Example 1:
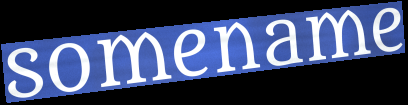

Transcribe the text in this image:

somename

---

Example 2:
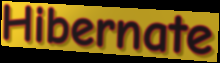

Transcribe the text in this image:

Hibernate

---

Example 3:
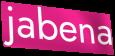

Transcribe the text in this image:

jabena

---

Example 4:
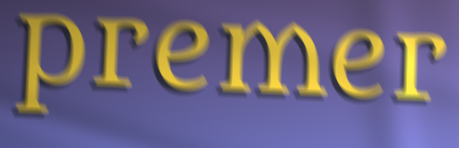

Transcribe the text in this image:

premer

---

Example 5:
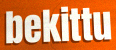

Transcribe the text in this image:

bekittu